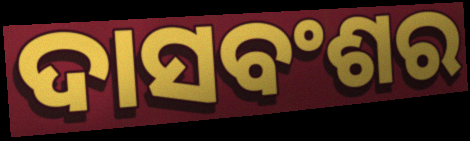
ଦାସବଂଶର